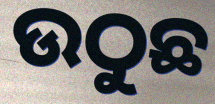
ଉଠୁଛ